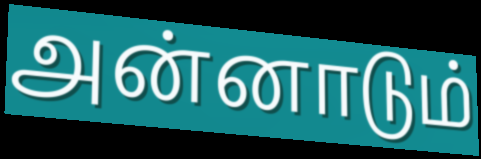
அன்னாடும்